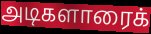
அடிகளாரைக்